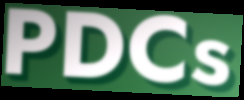
PDCs